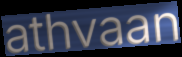
athvaan